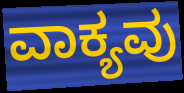
ವಾಕ್ಯವು